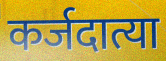
कर्जदात्या